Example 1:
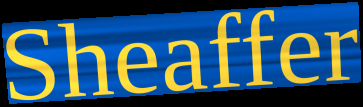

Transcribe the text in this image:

Sheaffer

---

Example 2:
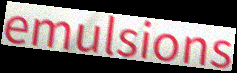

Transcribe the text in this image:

emulsions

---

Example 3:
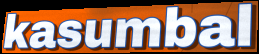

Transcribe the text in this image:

kasumbal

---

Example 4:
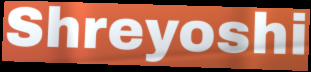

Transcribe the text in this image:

Shreyoshi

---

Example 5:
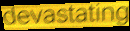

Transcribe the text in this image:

devastating